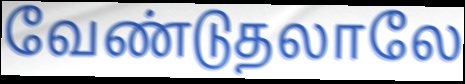
வேண்டுதலாலே